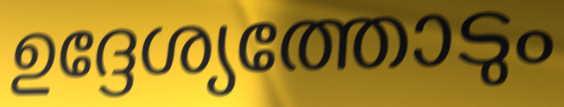
ഉദ്ദേശ്യത്തോടും